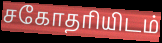
சகோதரியிடம்